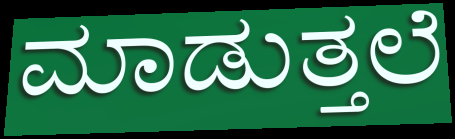
ಮಾಡುತ್ತಲೆ